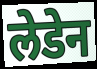
लेडेन